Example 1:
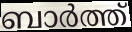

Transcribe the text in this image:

ബാർത്ത്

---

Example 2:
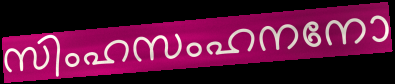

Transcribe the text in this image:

സിംഹസംഹനനോ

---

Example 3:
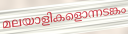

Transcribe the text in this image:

മലയാളികളൊന്നടങ്കം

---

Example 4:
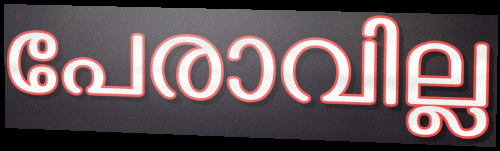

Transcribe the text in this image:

പേരാവില്ല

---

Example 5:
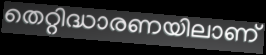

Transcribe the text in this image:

തെറ്റിദ്ധാരണയിലാണ്